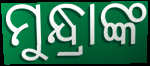
ମୁନ୍ଧ୍ରାଙ୍କ